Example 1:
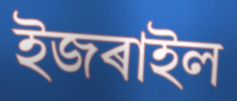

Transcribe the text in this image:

ইজৰাইল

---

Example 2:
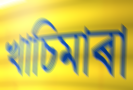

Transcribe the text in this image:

খাচিমাৰা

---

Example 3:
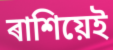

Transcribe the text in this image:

ৰাশিয়েই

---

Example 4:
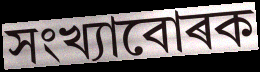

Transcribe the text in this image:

সংখ্যাবোৰক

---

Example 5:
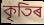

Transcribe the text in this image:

কৃতিৰ